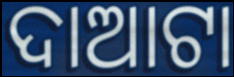
ଦାଆଟା